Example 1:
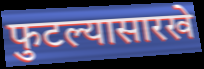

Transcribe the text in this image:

फुटल्यासारखे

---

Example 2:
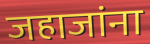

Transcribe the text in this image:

जहाजांना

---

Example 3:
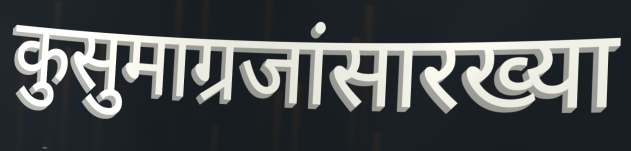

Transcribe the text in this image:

कुसुमाग्रजांसारख्या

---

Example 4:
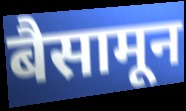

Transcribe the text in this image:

बैसामून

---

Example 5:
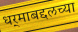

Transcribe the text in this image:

धर्माबद्दलच्या